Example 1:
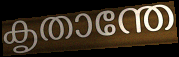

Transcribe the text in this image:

കൃതാന്തേ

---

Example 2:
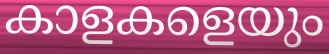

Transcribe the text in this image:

കാളകളെയും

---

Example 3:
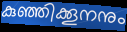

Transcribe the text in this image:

കുഞ്ഞിക്കൂനനും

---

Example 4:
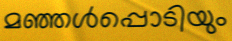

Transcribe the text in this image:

മഞ്ഞൾപ്പൊടിയും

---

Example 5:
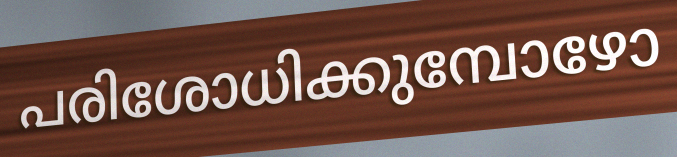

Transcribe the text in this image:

പരിശോധിക്കുമ്പോഴോ